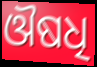
ଔଷଧି